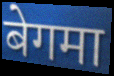
बेगमा